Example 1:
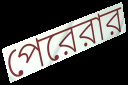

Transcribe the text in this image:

পেরেরার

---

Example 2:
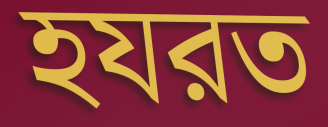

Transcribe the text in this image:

হযরত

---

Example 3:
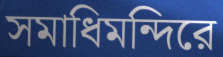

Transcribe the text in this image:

সমাধিমন্দিরে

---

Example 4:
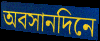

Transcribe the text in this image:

অবসানদিনে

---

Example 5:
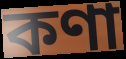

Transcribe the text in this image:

কণা